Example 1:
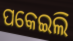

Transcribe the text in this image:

ପକେଇଲି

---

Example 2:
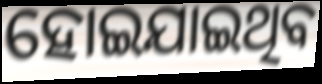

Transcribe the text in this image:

ହୋଇଯାଇଥିବ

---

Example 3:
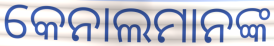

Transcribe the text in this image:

କେନାଲମାନଙ୍କ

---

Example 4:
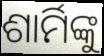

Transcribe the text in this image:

ଶାର୍ମିଙ୍କୁ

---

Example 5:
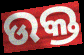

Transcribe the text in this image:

ଉକ୍ତ